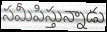
సమీపిస్తున్నాడు